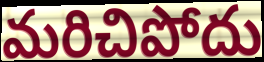
మరిచిపోదు